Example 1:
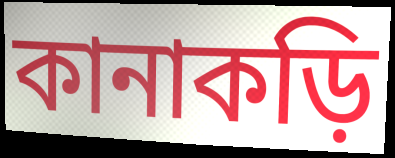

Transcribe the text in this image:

কানাকড়ি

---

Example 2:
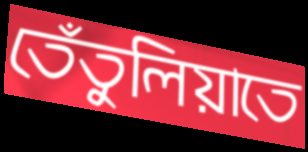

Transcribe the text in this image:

তেঁতুলিয়াতে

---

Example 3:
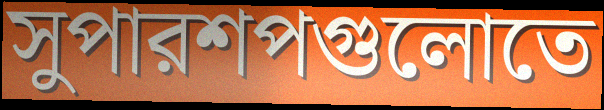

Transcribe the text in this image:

সুপারশপগুলোতে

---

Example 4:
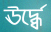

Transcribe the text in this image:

ঊর্দ্ধ্বে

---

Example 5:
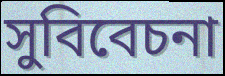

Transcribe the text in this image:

সুবিবেচনা